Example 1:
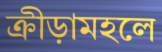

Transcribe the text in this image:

ক্রীড়ামহলে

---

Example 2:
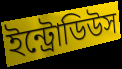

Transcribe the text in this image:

ইন্ট্রোডিউস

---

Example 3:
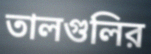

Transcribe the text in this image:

তালগুলির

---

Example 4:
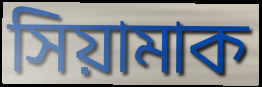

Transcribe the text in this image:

সিয়ামাক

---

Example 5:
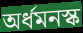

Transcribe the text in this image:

অর্ধমনস্ক